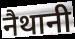
नैथानी